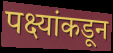
पक्ष्यांकडून